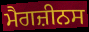
ਮੈਗਜ਼ੀਨਸ